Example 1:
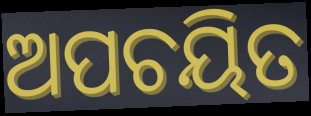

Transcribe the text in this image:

ଅପଚୟିତ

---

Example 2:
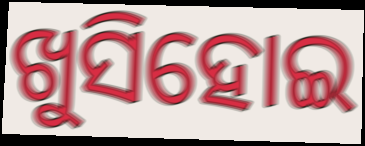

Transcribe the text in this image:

ଖୁସିହୋଇ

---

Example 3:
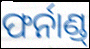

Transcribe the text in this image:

ଫର୍ନାଣ୍ଡ୍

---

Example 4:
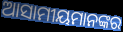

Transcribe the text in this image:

ଆସାମୀୟମାନଙ୍କର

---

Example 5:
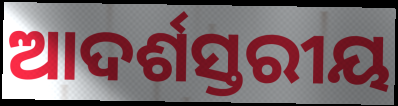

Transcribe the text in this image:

ଆଦର୍ଶସ୍ତରୀୟ